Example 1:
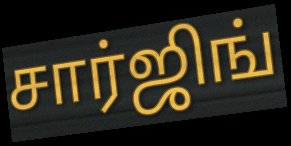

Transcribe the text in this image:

சார்ஜிங்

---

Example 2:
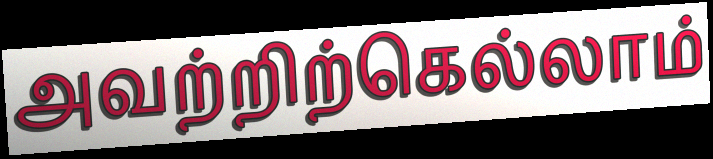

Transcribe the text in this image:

அவற்றிற்கெல்லாம்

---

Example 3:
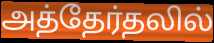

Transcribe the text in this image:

அத்தேர்தலில்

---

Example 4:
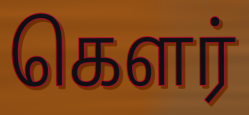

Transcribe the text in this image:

கௌர்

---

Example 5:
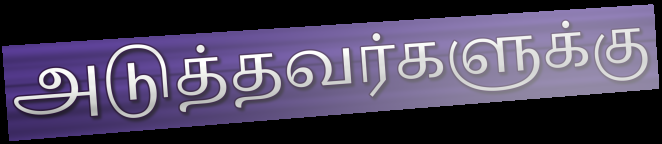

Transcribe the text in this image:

அடுத்தவர்களுக்கு